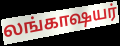
லங்காஷயர்